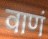
वाणं